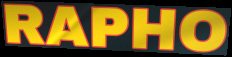
RAPHO